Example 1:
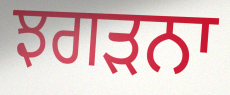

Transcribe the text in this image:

ਝਗੜਨਾ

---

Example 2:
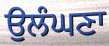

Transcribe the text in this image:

ਉਲੰਘਣਾ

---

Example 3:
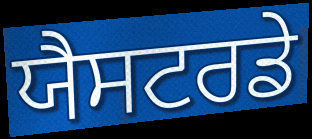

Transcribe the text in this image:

ਯੈਸਟਰਡੇ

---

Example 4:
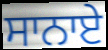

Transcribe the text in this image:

ਸਾਨਾਏ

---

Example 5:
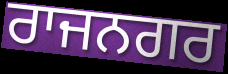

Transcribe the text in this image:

ਰਾਜਨਗਰ